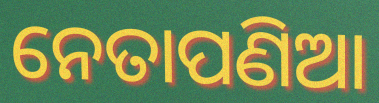
ନେତାପଣିଆ